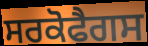
ਸਰਕੋਫੈਗਸ